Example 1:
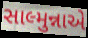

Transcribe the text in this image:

સાલ્મુન્નાએ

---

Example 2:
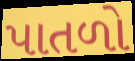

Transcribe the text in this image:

પાતળો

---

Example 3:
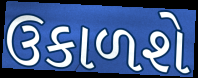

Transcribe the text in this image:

ઉકાળશે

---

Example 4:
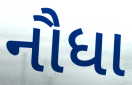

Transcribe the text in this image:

નૌધા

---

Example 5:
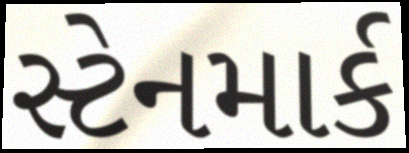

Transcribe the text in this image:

સ્ટેનમાર્ક